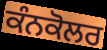
ਕੰਨਕੋਲਰ